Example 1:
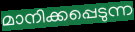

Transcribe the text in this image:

മാനിക്കപ്പെടുന്ന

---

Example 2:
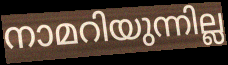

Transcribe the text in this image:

നാമറിയുന്നില്ല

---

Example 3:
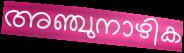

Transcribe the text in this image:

അഞ്ചുനാഴിക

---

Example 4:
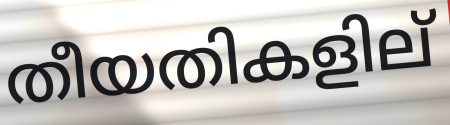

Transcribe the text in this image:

തീയതികളില്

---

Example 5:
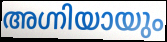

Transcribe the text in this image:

അഗ്നിയായും